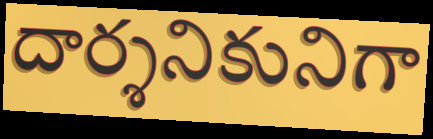
దార్శనికునిగా